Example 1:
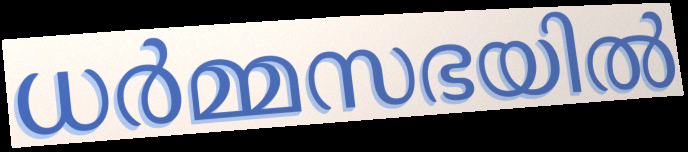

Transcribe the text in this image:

ധർമ്മസഭയിൽ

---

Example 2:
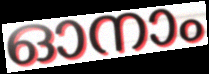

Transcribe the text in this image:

ഓനാം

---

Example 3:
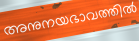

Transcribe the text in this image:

അനുനയഭാവത്തിൽ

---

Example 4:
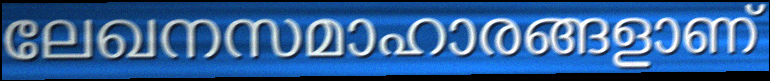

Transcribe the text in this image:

ലേഖനസമാഹാരങ്ങളാണ്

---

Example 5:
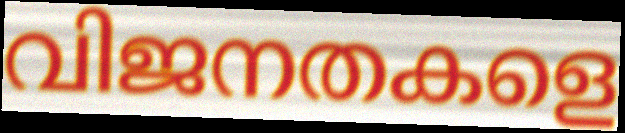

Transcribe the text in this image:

വിജനതകളെ